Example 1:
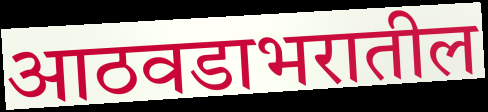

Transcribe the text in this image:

आठवडाभरातील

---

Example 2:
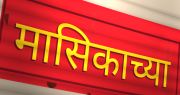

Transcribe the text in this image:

मासिकाच्या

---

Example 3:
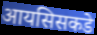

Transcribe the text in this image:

आयसिसकडे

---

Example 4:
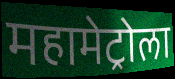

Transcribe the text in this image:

महामेट्रोला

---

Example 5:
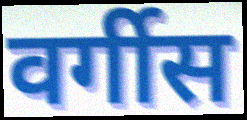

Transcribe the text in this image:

वर्गीस